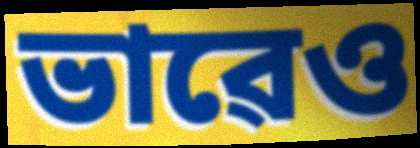
ভাৱেও